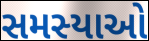
સમસ્યાઓ